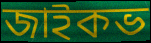
জাইকভ